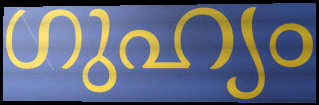
ഗുഹ്യം